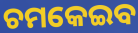
ଚମକେଇବ